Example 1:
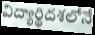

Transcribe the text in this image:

విద్యార్థిదశలోనే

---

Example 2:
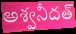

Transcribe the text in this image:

అశ్వనీదత్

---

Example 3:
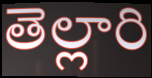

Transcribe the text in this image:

తెల్లారి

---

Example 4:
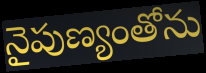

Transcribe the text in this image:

నైపుణ్యంతోను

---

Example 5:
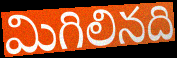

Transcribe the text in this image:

మిగిలినది